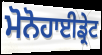
ਮੋਨੋਹਾਈਡ੍ਰੇਟ